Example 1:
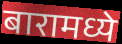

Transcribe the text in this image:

बारामध्ये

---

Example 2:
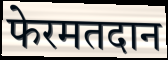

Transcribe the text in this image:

फेरमतदान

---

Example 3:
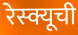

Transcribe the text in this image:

रेस्क्यूची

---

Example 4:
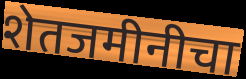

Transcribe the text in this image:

शेतजमीनीचा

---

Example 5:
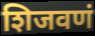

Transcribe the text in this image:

शिजवणं